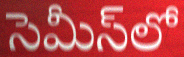
సెమీస్‌లో